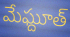
మేఘ్దూత్